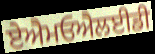
ਏਐਮਓਐਲਈਡੀ